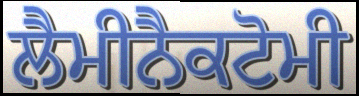
ਲੈਮੀਨੈਕਟੋਮੀ